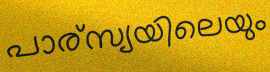
പാര്സ്യയിലെയും